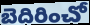
బెదిరించో